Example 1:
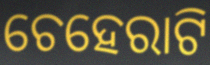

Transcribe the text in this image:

ଚେହେରାଟି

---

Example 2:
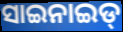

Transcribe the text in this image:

ସାଇନାଇଡ୍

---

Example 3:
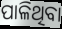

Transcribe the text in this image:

ପାଳିଥିବା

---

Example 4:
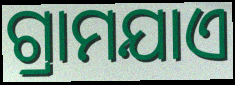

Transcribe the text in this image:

ଗ୍ରାମଯାଏ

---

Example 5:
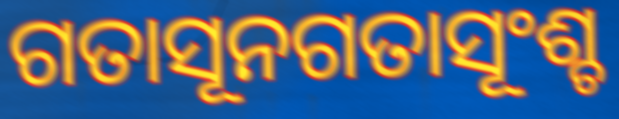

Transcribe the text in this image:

ଗତାସୂନଗତାସୂଂଶ୍ଚ